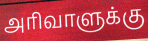
அரிவாளுக்கு